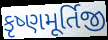
કૃષ્ણમૂર્તિજી